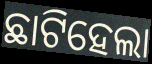
ଛାଟିହେଲା